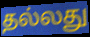
தல்லது